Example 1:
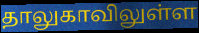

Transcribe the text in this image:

தாலுகாவிலுள்ள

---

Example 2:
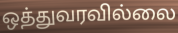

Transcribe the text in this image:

ஒத்துவரவில்லை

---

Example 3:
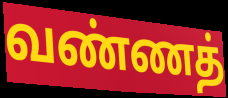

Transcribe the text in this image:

வண்ணத்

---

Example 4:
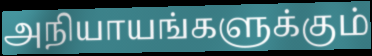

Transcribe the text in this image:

அநியாயங்களுக்கும்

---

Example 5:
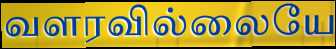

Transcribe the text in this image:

வளரவில்லையே